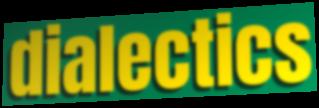
dialectics